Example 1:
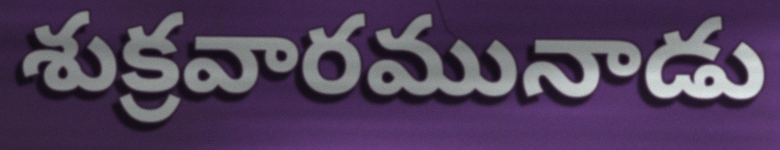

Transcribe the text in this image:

శుక్రవారమునాడు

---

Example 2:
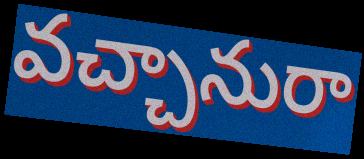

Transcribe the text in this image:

వచ్చానురా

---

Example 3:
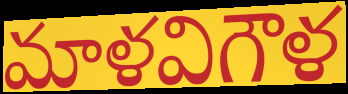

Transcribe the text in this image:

మాళవిగౌళ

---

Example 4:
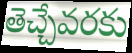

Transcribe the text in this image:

తెచ్చేవరకు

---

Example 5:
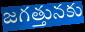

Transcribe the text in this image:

జగత్తునకు